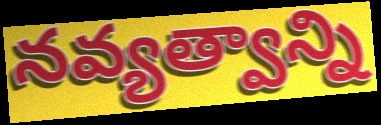
నవ్యత్వాన్ని